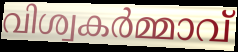
വിശ്വകർമ്മാവ്